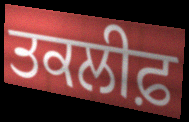
ਤਕਲੀਫ਼